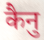
कैनु